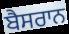
ਬੈਸਰਾਨ